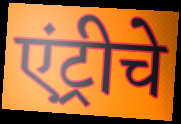
एंट्रीचे